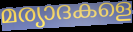
മര്യാദകളെ